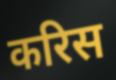
करिस